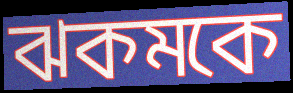
ঝকমকে